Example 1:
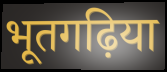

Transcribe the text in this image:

भूतगढ़िया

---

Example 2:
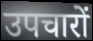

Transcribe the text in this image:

उपचारों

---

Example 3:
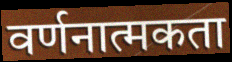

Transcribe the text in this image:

वर्णनात्मकता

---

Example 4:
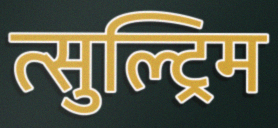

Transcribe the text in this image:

त्सुल्ट्रिम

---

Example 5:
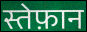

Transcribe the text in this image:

स्तेफ़ान